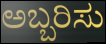
ಅಬ್ಬರಿಸು